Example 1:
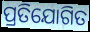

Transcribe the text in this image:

ପ୍ରତିଯୋଗିତ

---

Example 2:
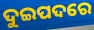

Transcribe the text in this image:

ଦୁଇପଦରେ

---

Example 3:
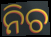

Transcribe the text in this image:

ନିଚ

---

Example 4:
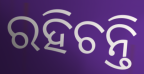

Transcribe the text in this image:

ରହିଚନ୍ତି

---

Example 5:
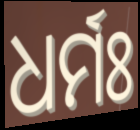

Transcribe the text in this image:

ଧର୍ମଃ